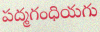
పద్మగంధియగు